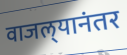
वाजल्यानंतर